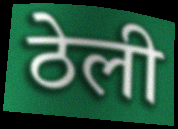
ठेली